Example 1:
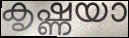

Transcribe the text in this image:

കൃഷ്ണയാ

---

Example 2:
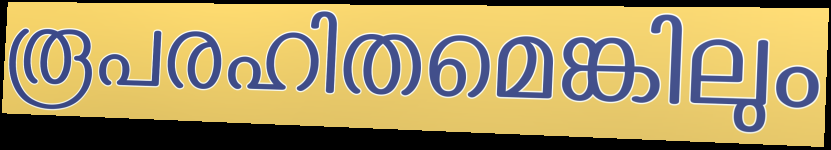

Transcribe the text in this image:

രൂപരഹിതമെങ്കിലും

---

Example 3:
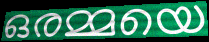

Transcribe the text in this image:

ഒരമ്മയെ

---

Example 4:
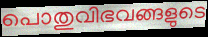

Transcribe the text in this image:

പൊതുവിഭവങ്ങളുടെ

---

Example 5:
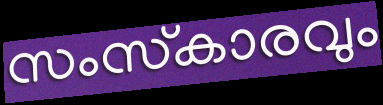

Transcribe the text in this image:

സംസ്‌കാരവും